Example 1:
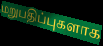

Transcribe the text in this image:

மறுபதிப்புகளாக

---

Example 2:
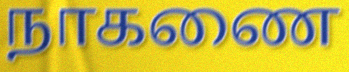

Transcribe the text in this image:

நாகணை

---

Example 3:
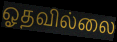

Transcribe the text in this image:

ஓதவில்லை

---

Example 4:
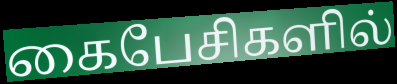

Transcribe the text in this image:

கைபேசிகளில்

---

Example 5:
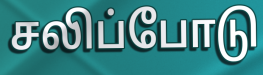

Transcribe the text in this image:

சலிப்போடு